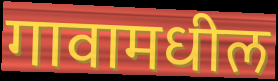
गावामधील